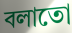
বলাতো